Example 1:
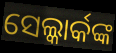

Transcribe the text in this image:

ସେଲ୍କାର୍କଙ୍କ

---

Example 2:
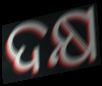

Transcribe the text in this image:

ଦକ୍ଷ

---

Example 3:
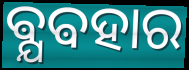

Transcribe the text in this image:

ଵ୍ଯଵହାର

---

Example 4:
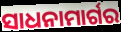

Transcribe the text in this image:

ସାଧନାମାର୍ଗର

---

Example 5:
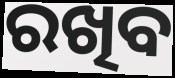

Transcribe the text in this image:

ରଖିବ